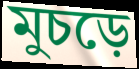
মুচড়ে